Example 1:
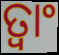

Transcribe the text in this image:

ତ୍ୱାଂ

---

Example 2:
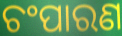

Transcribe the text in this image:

ଚଂପାରଣ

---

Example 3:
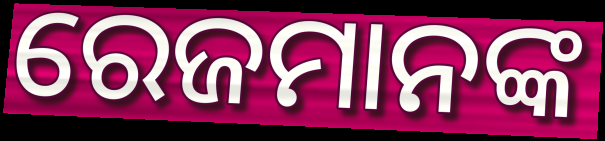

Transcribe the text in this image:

ରେଜମାନଙ୍କ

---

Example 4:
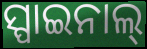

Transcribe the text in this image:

ସ୍ପାଇନାଲ୍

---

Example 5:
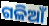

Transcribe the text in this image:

ଗଳିଆଁ